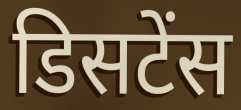
डिसटेंस